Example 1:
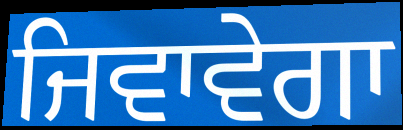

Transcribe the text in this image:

ਜਿਵਾਵੇਗਾ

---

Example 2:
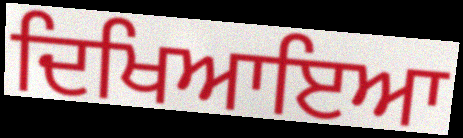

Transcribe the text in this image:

ਦਿਖਿਆਇਆ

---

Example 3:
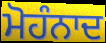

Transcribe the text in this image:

ਮੋਹੰਨਾਦ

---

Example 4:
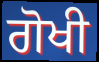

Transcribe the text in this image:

ਗੋਖੀ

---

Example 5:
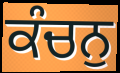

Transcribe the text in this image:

ਕੰਚਨੁ